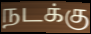
நடக்கு